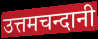
उत्तमचन्दानी